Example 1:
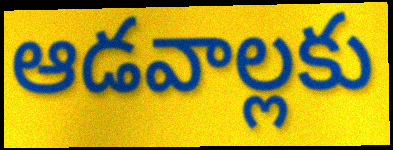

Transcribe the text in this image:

ఆడవాల్లకు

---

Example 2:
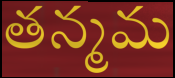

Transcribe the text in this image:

తన్మమ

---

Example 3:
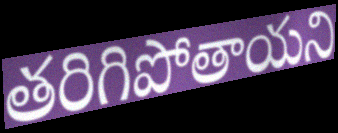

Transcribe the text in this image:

తరిగిపోతాయని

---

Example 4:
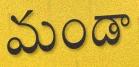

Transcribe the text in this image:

మండా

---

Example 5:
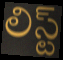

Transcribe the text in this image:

లిస్ట్